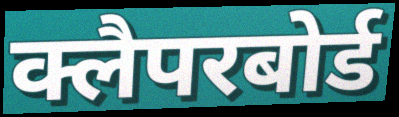
क्लैपरबोर्ड